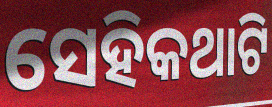
ସେହିକଥାଟି